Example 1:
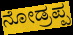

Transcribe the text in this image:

ನೋಡ್ರಪ್ಪ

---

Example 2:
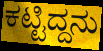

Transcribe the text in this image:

ಕಟ್ಟಿದ್ದನು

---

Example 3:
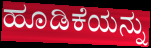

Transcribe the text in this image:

ಹೂಡಿಕೆಯನ್ನು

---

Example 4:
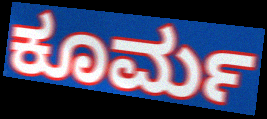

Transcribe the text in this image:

ಕೂರ್ಮ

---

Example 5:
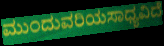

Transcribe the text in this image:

ಮುಂದುವರಿಯಸಾಧ್ಯವಿದೆ